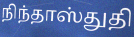
நிந்தாஸ்துதி